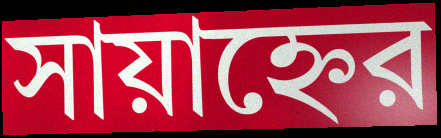
সায়াহ্নের